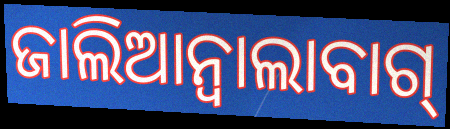
ଜାଲିଆନ୍ଵାଲାବାଗ୍